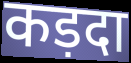
कड़दा